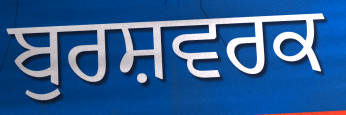
ਬੁਰਸ਼ਵਰਕ